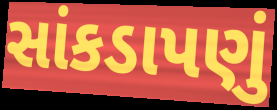
સાંકડાપણું